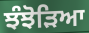
ਝੰਝੋੜਿਆ